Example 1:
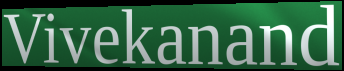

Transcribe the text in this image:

Vivekanand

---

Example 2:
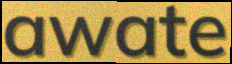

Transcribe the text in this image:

awate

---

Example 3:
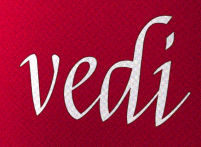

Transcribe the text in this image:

vedi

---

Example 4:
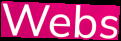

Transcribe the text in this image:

Webs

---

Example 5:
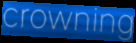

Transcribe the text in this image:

crowning